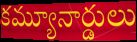
కమ్యూనార్డులు